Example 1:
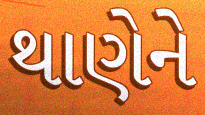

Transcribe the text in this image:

થાણેને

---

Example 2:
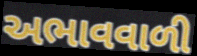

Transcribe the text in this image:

અભાવવાળી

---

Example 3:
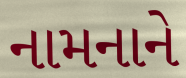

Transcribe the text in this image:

નામનાને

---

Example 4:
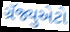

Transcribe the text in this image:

ગ્રૅજ્યુએટો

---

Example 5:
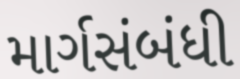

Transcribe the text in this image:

માર્ગસંબંધી